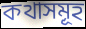
কথাসমূহ